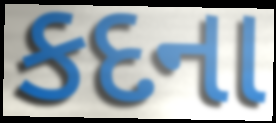
કદના